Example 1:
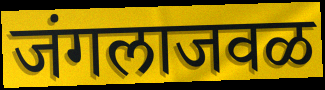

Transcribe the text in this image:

जंगलाजवळ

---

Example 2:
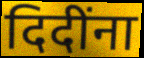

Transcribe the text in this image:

दिदींना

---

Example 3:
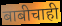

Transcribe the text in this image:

बाबीचाही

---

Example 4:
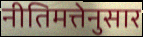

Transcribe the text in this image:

नीतिमत्तेनुसार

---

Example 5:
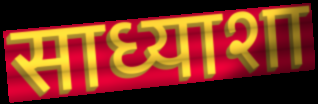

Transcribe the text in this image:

साध्याशा